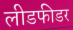
लीडफीडर